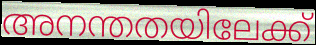
അനന്തതയിലേക്ക്